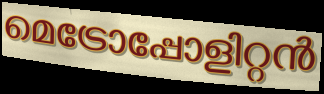
മെട്രോപ്പോളിറ്റൻ